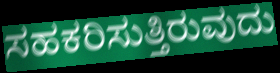
ಸಹಕರಿಸುತ್ತಿರುವುದು